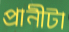
প্রানীটা